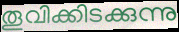
തൂവിക്കിടക്കുന്നു